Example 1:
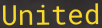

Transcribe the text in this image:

United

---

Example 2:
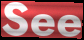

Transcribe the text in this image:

See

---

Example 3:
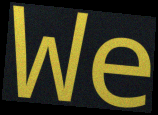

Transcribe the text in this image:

We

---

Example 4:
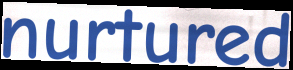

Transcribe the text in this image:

nurtured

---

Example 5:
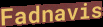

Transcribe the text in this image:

Fadnavis